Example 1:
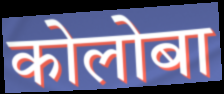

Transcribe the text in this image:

कोलोबा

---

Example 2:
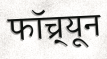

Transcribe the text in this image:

फॉच्र्यून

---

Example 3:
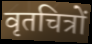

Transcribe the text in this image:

वृतचित्रों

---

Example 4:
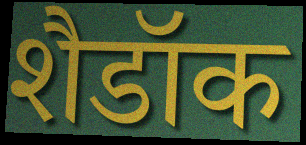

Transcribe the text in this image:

शैडॉक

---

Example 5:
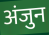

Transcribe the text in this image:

अंजुन